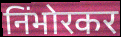
निंभोरकर